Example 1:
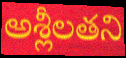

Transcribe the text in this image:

అశ్లీలతని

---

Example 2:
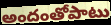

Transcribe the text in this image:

అందంతోపాటు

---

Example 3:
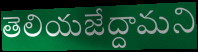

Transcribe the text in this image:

తెలియజేద్దామని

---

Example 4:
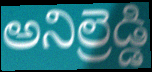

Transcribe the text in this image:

అనిల్రెడ్డి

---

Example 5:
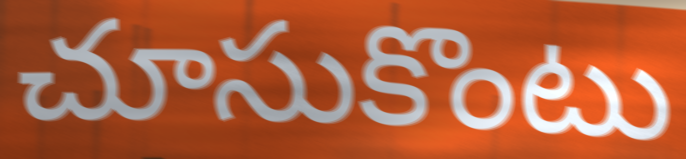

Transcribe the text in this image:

చూసుకొంటు